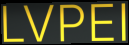
LVPEI